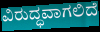
ವಿರುದ್ಧವಾಗಲಿದೆ